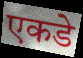
एकडे